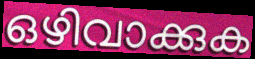
ഒഴിവാക്കുക